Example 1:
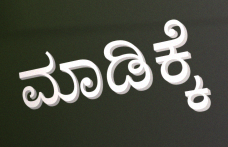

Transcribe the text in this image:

ಮಾಡಿಕ್ಕೆ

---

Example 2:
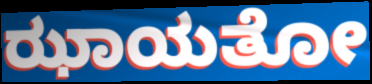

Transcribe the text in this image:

ಝಾಯತೋ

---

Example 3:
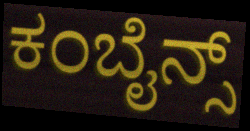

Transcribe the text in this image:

ಕಂಬೈನ್ಸ್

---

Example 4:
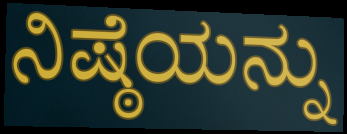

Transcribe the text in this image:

ನಿಷ್ಠೆಯನ್ನು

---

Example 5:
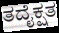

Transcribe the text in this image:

ತದೈಕ್ಷತ